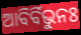
ଆବିର୍ବିଭୁନଃ